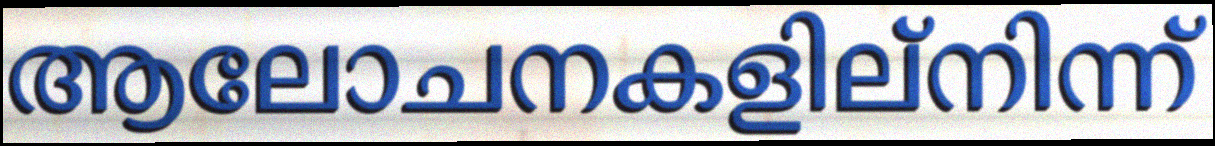
ആലോചനകളില്നിന്ന്